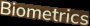
Biometrics